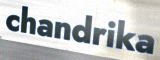
chandrika